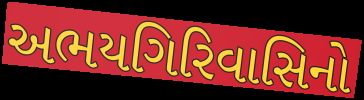
અભયગિરિવાસિનો